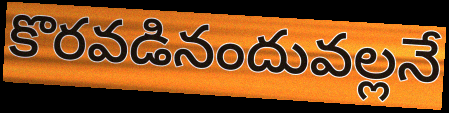
కొరవడినందువల్లనే